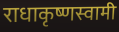
राधाकृष्णस्वामी